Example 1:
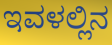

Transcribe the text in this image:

ಇವಳಲ್ಲಿನ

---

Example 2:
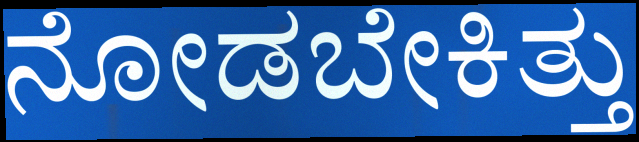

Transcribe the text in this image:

ನೋಡಬೇಕಿತ್ತು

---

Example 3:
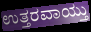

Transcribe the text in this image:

ಉತ್ತರವಾಯ್ತು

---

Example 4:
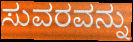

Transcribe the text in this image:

ಸುವರವನ್ನು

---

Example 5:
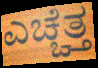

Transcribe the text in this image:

ಎಚ್ಚೆತ್ತ